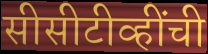
सीसीटीव्हींची